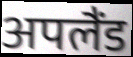
अपलैंड